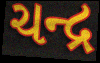
ચન્દ્ર